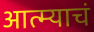
आत्म्याचं